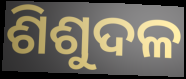
ଶିଶୁଦଳ